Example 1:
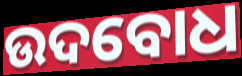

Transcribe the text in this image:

ଉଦବୋଧ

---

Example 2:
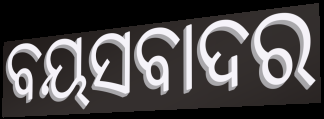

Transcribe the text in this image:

ବୟସବାଦର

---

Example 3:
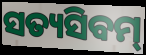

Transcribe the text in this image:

ସତ୍ୟସିବମ୍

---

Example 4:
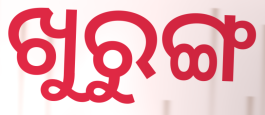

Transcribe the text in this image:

ଖୁରୁଙ୍ଗ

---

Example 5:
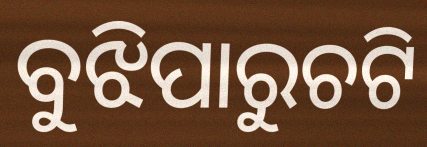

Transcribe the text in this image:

ବୁଝିପାରୁଚଟି